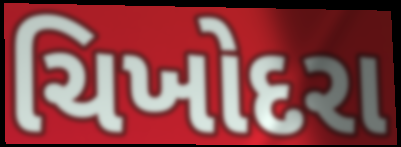
ચિખોદરા